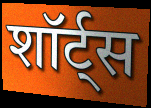
शॉर्ट्स